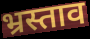
भ्रस्ताव